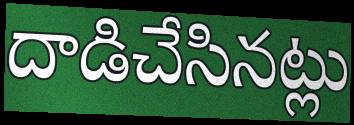
దాడిచేసినట్లు